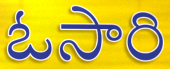
ఓసారి